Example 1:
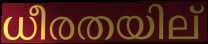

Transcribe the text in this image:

ധീരതയില്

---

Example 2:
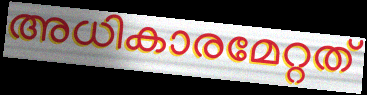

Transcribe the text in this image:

അധികാരമേറ്റത്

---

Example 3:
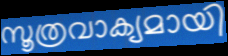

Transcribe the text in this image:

സൂത്രവാക്യമായി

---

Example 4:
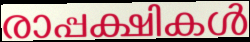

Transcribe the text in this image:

രാപ്പക്ഷികൾ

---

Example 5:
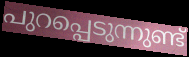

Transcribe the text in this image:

പുറപ്പെടുന്നുണ്ട്